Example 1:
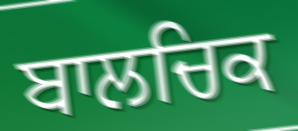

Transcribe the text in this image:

ਬਾਲਚਿਕ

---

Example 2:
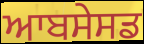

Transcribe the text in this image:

ਆਬਸੇਸਡ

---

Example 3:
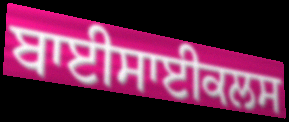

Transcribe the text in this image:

ਬਾਈਸਾਈਕਲਸ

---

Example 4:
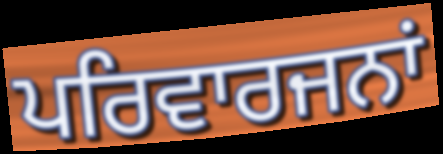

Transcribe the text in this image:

ਪਰਿਵਾਰਜਨਾਂ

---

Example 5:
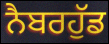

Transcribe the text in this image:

ਨੈਬਰਹੁੱਡ